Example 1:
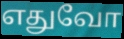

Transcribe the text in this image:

எதுவோ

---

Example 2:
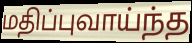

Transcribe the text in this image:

மதிப்புவாய்ந்த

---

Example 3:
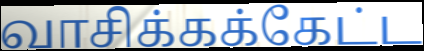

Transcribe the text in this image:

வாசிக்கக்கேட்ட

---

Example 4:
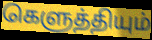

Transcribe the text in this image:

கெளுத்தியும்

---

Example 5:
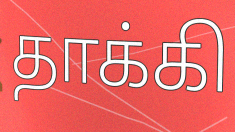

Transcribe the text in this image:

தாக்கி